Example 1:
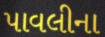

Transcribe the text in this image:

પાવલીના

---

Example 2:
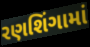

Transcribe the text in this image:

રણશિંગામાં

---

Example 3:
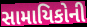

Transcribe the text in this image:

સામાયિકોની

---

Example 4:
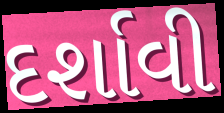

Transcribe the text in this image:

દર્શાવી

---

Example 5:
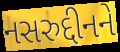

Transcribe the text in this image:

નસરુદ્દીનને